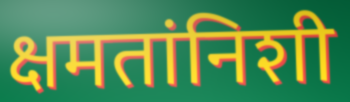
क्षमतांनिशी